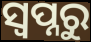
ସ୍ୱପ୍ନରୁ